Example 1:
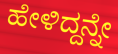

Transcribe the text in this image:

ಹೇಳಿದ್ದನ್ನೇ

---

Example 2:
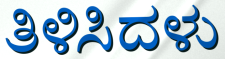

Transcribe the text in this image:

ತಿಳಿಸಿದಳು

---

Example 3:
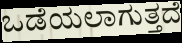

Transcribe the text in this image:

ಒಡೆಯಲಾಗುತ್ತದೆ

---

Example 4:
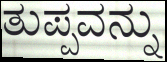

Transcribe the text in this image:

ತುಪ್ಪವನ್ನು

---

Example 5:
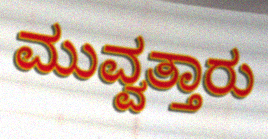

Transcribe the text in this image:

ಮುವ್ವತ್ತಾರು